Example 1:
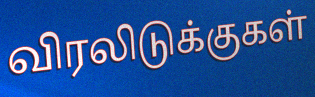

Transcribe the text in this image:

விரலிடுக்குகள்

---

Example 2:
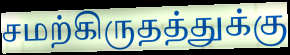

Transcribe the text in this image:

சமற்கிருதத்துக்கு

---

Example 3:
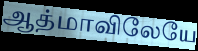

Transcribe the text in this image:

ஆத்மாவிலேயே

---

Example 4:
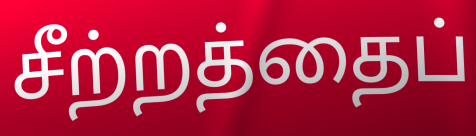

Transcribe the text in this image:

சீற்றத்தைப்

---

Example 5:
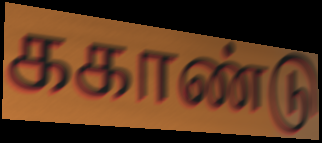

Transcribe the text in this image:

ககாண்டு